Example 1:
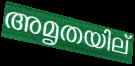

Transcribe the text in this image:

അമൃതയില്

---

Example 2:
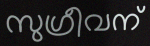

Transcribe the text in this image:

സുഗ്രീവന്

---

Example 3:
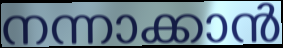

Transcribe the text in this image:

നന്നാക്കാൻ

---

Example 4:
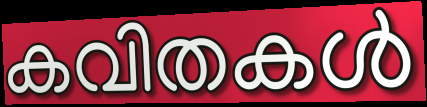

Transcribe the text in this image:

കവിതകൾ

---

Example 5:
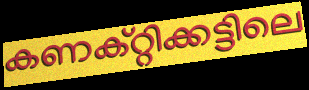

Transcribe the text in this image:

കണക്റ്റിക്കട്ടിലെ